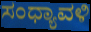
ಸಂಧ್ಯಾವಳಿ